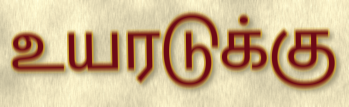
உயரடுக்கு